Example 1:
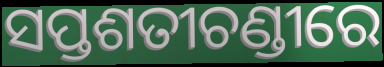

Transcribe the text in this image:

ସପ୍ତଶତୀଚଣ୍ଡୀରେ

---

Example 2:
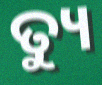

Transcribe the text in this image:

ତ୍ୟୁ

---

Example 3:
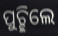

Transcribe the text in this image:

ପୁଚ୍ଛିଲେ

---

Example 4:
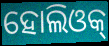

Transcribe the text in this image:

ହୋଲିଓକ୍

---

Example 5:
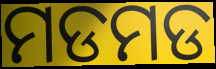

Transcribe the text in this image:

ମଡମଡ